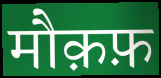
मौक़फ़